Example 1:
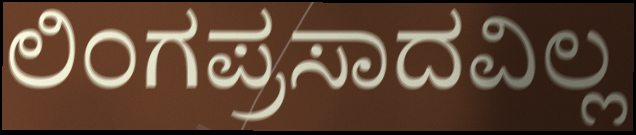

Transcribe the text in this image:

ಲಿಂಗಪ್ರಸಾದವಿಲ್ಲ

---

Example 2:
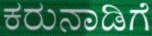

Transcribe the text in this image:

ಕರುನಾಡಿಗೆ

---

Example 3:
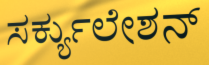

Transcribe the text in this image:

ಸರ್ಕ್ಯುಲೇಶನ್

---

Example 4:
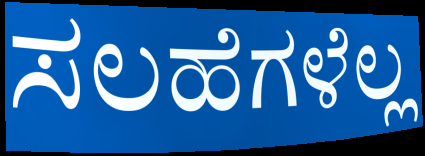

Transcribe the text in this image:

ಸಲಹೆಗಳೆಲ್ಲ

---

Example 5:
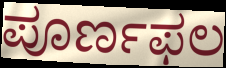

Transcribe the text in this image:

ಪೂರ್ಣಫಲ